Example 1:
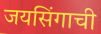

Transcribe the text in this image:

जयसिंगाची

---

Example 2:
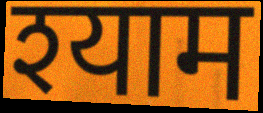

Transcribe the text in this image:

श्‍याम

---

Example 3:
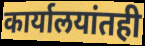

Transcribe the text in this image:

कार्यालयांतही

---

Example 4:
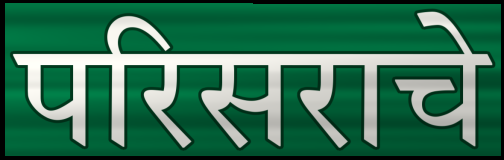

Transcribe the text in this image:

परिसराचे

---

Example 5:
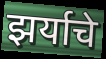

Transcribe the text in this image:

झर्याचे